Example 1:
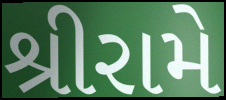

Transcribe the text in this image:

શ્રીરામે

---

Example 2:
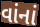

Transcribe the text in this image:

વાંનાં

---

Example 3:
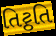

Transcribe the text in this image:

તિટ્ઠતિ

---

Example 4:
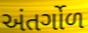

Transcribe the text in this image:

અંતર્ગોળ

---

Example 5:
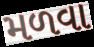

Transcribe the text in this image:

મળવા